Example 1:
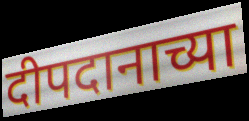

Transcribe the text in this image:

दीपदानाच्या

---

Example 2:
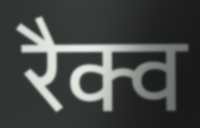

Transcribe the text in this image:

रैक्व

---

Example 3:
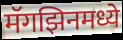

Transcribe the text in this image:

मॅगझिनमध्ये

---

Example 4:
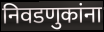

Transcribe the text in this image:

निवडणुकांना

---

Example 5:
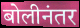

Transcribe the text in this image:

बोलीनंतर